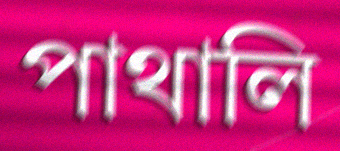
পাথালি